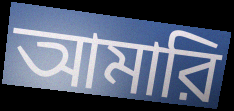
আমারি